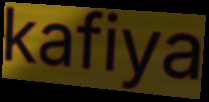
kafiya